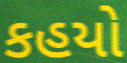
કહયો